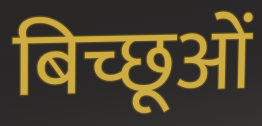
बिच्छूओं